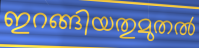
ഇറങ്ങിയതുമുതൽ